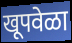
खूपवेळा